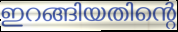
ഇറങ്ങിയതിന്റെ